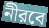
নীরবে